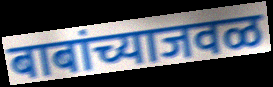
बाबांच्याजवळ